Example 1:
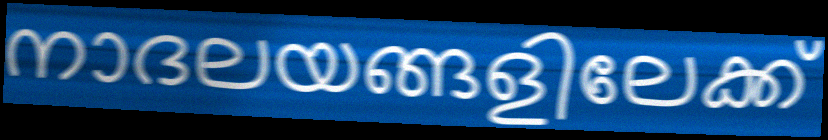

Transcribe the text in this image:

നാദലയങ്ങളിലേക്ക്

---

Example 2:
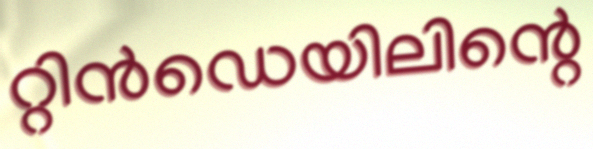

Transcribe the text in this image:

റ്റിൻഡെയിലിന്റെ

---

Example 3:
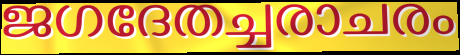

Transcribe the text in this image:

ജഗദേതച്ചരാചരം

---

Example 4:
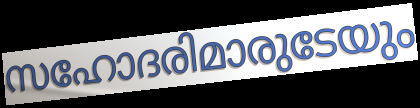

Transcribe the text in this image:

സഹോദരിമാരുടേയും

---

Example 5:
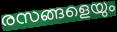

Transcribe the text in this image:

രസങ്ങളെയും